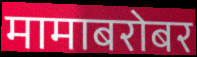
मामाबरोबर